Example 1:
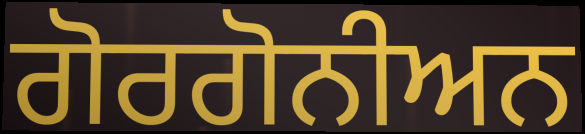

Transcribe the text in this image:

ਗੋਰਗੋਨੀਅਨ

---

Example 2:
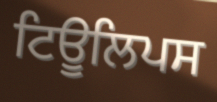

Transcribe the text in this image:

ਟਿਊਲਿਪਸ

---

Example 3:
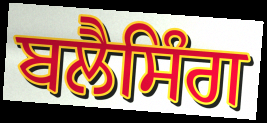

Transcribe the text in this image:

ਬਲੈਸਿੰਗ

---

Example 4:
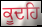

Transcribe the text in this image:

ਕੂਦਹਿ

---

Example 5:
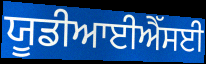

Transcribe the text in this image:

ਯੂਡੀਆਈਐੱਸਈ